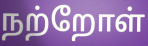
நற்றோள்